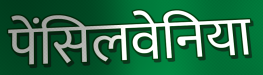
पेंसिलवेनिया